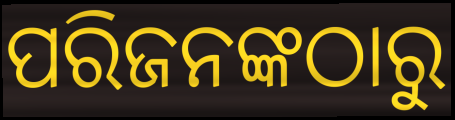
ପରିଜନଙ୍କଠାରୁ